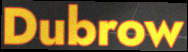
Dubrow